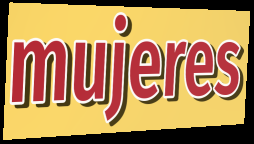
mujeres